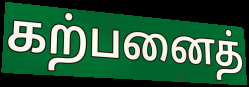
கற்பனைத்